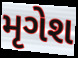
મૃગેશ